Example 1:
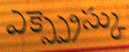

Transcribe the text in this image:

ఎక్స్ప్రెస్కు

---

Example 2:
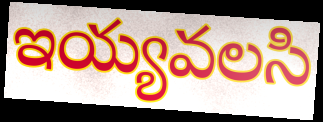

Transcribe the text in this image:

ఇయ్యవలసి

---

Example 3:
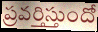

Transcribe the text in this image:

ప్రవర్తిస్తుందో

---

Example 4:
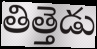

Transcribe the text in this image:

తిత్తెడు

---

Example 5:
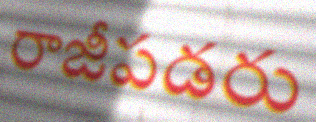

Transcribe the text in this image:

రాజీపడరు